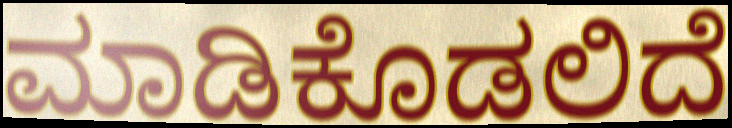
ಮಾಡಿಕೊಡಲಿದೆ